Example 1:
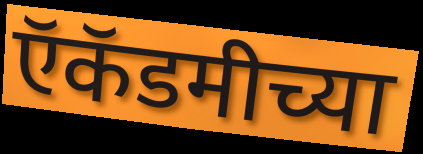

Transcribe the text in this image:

ऍकॅडमीच्या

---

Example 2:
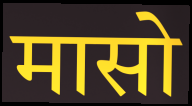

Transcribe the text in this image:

मासो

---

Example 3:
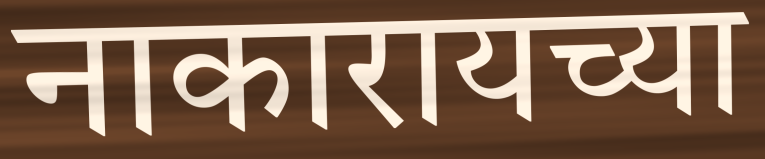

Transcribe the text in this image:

नाकारायच्या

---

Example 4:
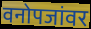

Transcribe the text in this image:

वनोपजांवर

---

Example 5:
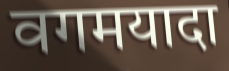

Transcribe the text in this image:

वगमयादा